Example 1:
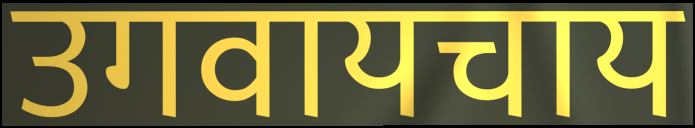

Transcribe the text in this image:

उगवायचाय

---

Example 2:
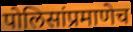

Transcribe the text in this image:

पोलिसांप्रमाणेच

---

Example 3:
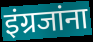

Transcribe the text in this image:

इंग्रजांना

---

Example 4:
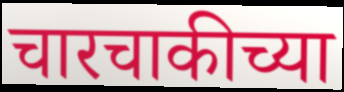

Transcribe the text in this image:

चारचाकीच्या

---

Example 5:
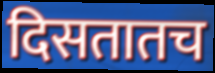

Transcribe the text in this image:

दिसतातच